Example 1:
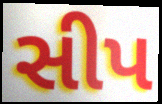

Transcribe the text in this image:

સીપ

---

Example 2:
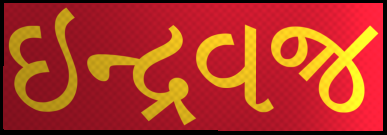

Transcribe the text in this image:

ઇન્દ્રવજ્ર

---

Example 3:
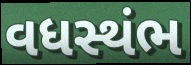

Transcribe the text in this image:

વધસ્થંભ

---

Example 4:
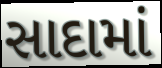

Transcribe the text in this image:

સાદામાં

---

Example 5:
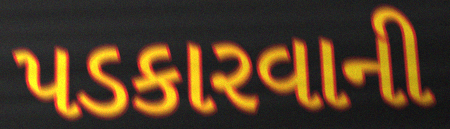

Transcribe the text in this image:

પડકારવાની